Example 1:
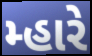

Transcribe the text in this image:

મ્હારે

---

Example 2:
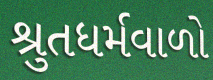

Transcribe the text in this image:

શ્રુતધર્મવાળો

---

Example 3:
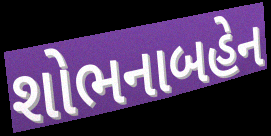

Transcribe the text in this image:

શોભનાબહેન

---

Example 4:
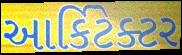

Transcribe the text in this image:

આર્કિટેક્ટર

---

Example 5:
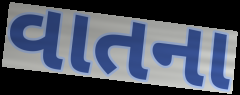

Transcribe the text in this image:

વાતના